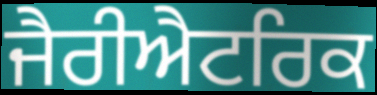
ਜੈਰੀਐਟਰਿਕ